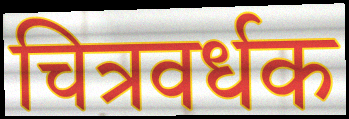
चित्रवर्धक